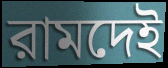
রামদেই